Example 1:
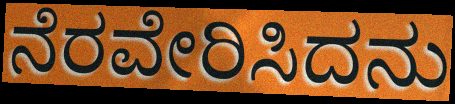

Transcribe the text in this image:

ನೆರವೇರಿಸಿದನು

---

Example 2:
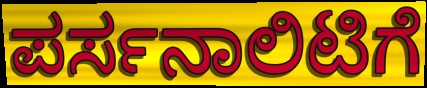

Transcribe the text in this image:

ಪರ್ಸನಾಲಿಟಿಗೆ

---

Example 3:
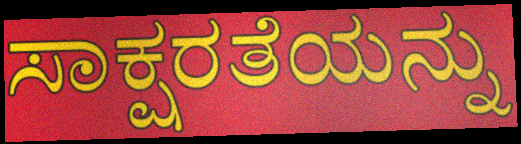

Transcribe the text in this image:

ಸಾಕ್ಷರತೆಯನ್ನು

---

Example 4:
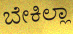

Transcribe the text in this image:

ಬೇಕಿಲ್ಲಾ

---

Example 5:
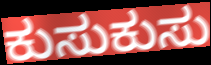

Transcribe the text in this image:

ಕುಸುಕುಸು